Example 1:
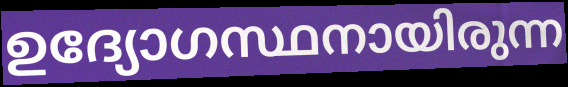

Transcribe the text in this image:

ഉദ്യോഗസ്ഥനായിരുന്ന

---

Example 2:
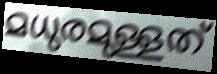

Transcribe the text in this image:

മധുരമുള്ളത്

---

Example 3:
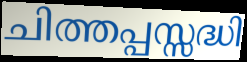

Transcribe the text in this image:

ചിത്തപ്പസ്സദ്ധി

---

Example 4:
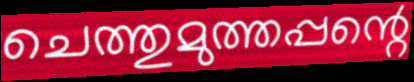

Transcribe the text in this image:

ചെത്തുമുത്തപ്പന്റെ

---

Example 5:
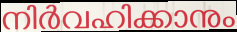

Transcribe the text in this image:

നിർവഹിക്കാനും